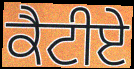
ਕੈਟੀਏ